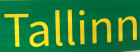
Tallinn